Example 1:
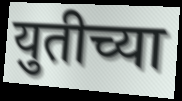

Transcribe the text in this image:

युतीच्या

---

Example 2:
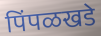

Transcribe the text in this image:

पिंपळखडे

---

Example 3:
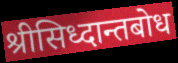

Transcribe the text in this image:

श्रीसिध्दान्तबोध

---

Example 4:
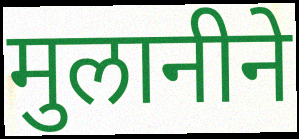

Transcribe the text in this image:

मुलानीने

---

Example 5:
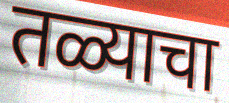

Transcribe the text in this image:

तळ्याचा